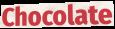
Chocolate